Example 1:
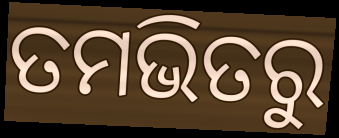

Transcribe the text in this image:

ତମଭିତରୁ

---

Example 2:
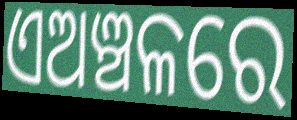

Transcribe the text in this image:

ଏଅଞ୍ଚଳରେ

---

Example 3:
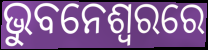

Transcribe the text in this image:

ଭୁବନେଶ୍ବରରେ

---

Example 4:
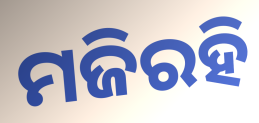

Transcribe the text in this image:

ମଜିରହି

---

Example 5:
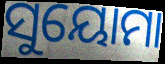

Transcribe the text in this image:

ସୁୟୋମା